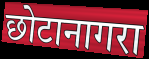
छोटानागरा